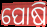
ପୋଷି